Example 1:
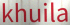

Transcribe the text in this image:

khuila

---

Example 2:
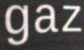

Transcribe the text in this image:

gaz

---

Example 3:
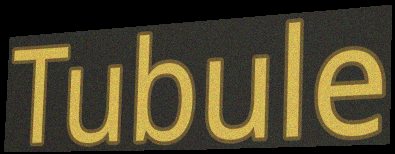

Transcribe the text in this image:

Tubule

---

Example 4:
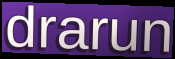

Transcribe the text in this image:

drarun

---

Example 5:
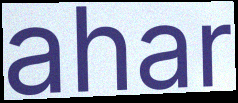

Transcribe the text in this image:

ahar